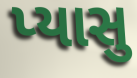
પ્યાસુ